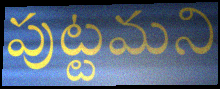
పుట్టమని